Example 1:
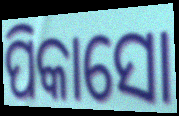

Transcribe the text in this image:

ପିକାସୋ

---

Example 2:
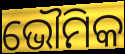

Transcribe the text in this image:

ଭୌମିକ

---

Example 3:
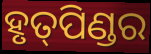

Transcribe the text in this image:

ହୃତ୍‌ପିଣ୍ଡର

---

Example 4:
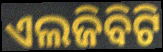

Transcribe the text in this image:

ଏଲଜିବିଟି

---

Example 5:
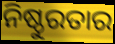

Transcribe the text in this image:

ନିଷ୍ଠୁରତାର